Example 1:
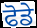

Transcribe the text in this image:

ਫੋਡੇ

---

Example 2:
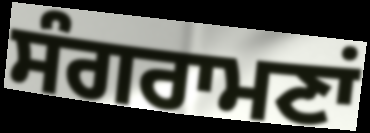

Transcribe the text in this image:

ਸੰਗਰਾਮਣਾਂ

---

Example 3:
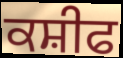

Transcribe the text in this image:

ਕਸ਼ੀਫ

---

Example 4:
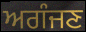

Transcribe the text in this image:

ਅਗੰਜਣ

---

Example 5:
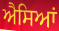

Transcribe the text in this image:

ਐਸਿਆਂ